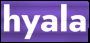
hyala